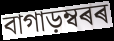
বাগাড়ম্বৰৰ